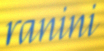
ranini